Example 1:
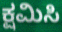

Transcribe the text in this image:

ಕ್ಷಮಿಸಿ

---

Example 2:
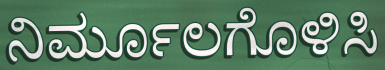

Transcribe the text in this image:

ನಿರ್ಮೂಲಗೊಳಿಸಿ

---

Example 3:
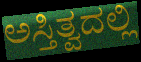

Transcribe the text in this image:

ಅಸ್ತಿತ್ವದಲ್ಲಿ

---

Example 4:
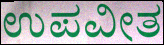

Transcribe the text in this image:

ಉಪವೀತ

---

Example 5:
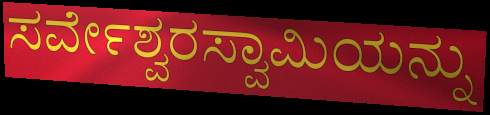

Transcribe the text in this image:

ಸರ್ವೇಶ್ವರಸ್ವಾಮಿಯನ್ನು